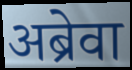
अब्रेवा